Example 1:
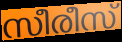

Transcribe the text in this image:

സീരീസ്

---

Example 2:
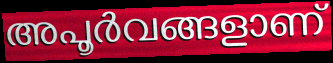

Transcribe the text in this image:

അപൂർവങ്ങളാണ്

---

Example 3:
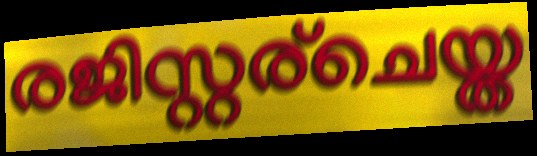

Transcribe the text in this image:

രജിസ്റ്റര്ചെയ്ത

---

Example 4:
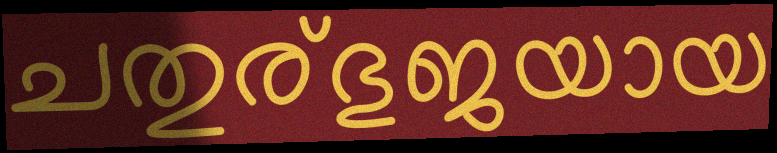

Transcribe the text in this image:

ചതുര്ഭുജയായ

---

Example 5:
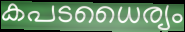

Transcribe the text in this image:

കപടധൈര്യം